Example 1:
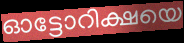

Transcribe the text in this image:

ഓട്ടോറിക്ഷയെ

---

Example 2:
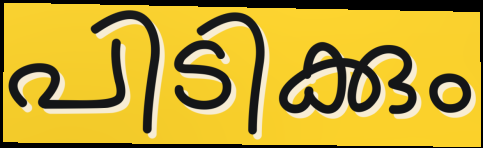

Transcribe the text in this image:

പിടിക്കും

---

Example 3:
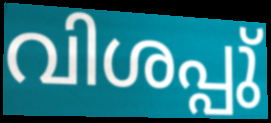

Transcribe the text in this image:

വിശപ്പു്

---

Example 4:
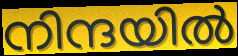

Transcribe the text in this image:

നിന്ദയിൽ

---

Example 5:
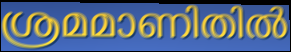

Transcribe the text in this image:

ശ്രമമാണിതിൽ